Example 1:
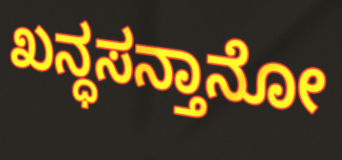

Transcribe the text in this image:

ಖನ್ಧಸನ್ತಾನೋ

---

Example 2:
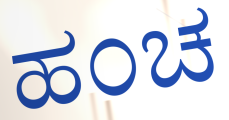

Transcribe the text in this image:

ಹಂಚ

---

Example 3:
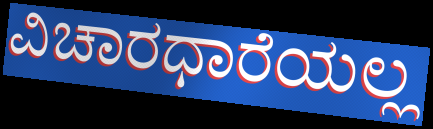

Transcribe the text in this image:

ವಿಚಾರಧಾರೆಯಲ್ಲ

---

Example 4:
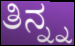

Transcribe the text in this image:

ತಿನ್ನ್ನ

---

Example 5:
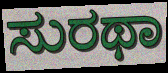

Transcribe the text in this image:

ಸುರಥಾ